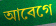
আবেগে